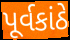
પૂર્વકાંઠે